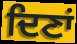
ਦਿਣਾਂ